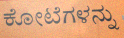
ಕೋಟೆಗಳನ್ನು